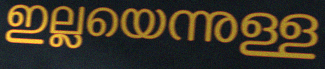
ഇല്ലയെന്നുള്ള